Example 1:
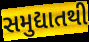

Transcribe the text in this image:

સમુદ્યાતથી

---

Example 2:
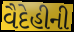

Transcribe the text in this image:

વૈદેહીની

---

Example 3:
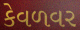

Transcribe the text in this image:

કેવળવર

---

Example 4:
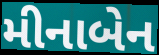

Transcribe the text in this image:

મીનાબેન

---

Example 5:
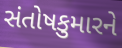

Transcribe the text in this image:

સંતોષકુમારને